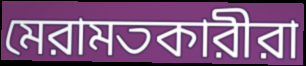
মেরামতকারীরা